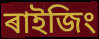
ৰাইজিং